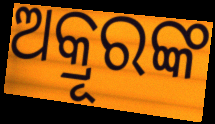
ଅକ୍ରୂରଙ୍କ